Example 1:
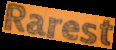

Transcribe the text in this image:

Rarest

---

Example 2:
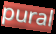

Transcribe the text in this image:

pural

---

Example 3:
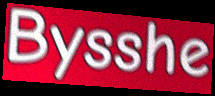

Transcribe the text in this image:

Bysshe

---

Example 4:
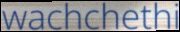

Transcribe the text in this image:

wachchethi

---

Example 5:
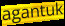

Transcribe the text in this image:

agantuk